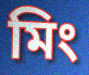
মিং